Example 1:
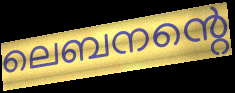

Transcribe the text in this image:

ലെബനന്റെ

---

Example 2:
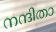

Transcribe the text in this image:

നന്ദിതാ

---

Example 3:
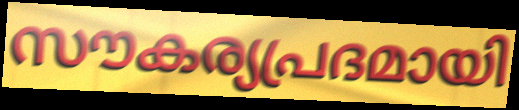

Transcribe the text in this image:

സൗകര്യപ്രദമായി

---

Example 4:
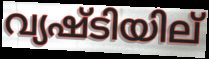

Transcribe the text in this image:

വ്യഷ്ടിയില്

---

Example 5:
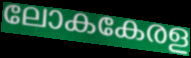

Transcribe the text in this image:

ലോകകേരള